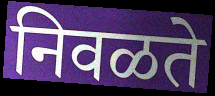
निवळते